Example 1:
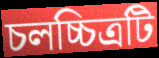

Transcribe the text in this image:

চলচ্চিত্রটি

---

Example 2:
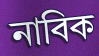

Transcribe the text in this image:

নাবিক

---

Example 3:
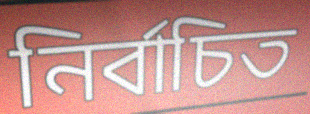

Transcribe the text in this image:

নির্বাচিত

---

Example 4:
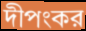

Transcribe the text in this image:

দীপংকর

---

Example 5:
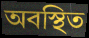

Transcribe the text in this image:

অবস্থিত